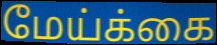
மேய்க்கை